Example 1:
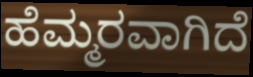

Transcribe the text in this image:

ಹೆಮ್ಮರವಾಗಿದೆ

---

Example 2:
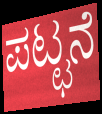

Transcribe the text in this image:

ಪಟ್ಟನೆ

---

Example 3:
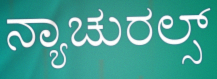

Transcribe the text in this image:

ನ್ಯಾಚುರಲ್ಸ್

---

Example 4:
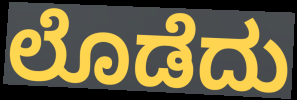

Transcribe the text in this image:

ಲೊಡೆದು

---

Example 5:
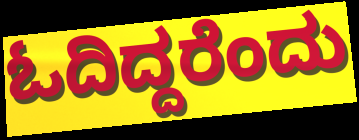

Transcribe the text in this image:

ಓದಿದ್ದರೆಂದು